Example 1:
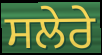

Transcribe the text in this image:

ਸਲੇਰੇ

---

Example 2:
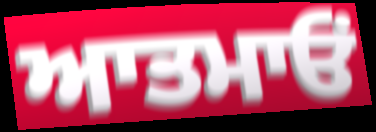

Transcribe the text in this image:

ਆਤਮਾਓਂ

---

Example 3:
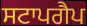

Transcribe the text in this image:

ਸਟਾਪਗੈਪ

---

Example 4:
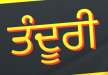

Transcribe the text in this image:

ਤੰਦੂਰੀ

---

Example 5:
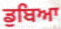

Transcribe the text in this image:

ਡੁਬਿਆ